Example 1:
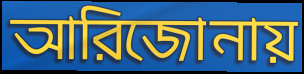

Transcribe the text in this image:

আরিজোনায়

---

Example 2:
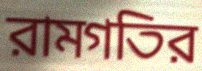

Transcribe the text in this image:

রামগতির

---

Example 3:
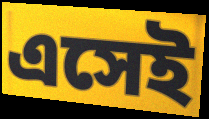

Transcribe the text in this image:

এসেই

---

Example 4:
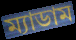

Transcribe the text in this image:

ম্যাডাম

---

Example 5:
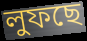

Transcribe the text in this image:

লুফছে